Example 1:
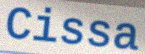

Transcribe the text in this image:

Cissa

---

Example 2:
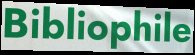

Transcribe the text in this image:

Bibliophile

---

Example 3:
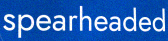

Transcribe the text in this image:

spearheaded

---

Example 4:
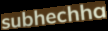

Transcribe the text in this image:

subhechha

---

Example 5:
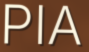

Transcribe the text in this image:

PIA